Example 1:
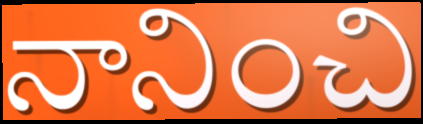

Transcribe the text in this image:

నానించి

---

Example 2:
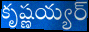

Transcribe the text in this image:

కృష్ణయ్యర్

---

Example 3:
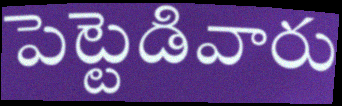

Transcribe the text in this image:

పెట్టెడివారు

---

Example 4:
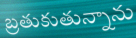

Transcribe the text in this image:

బ్రతుకుతున్నాను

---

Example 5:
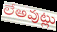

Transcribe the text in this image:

లేఅవుట్లు